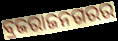
ବ୍ରଜରାଜନଗରର